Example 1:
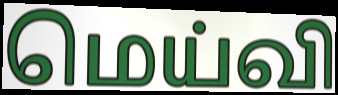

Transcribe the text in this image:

மெய்வி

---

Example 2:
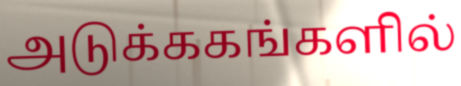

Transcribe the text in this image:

அடுக்ககங்களில்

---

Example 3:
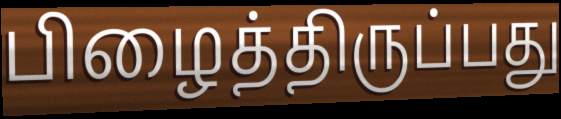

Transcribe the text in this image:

பிழைத்திருப்பது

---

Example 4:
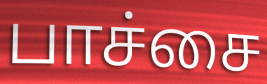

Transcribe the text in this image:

பாச்சை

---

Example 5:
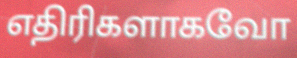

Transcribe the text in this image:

எதிரிகளாகவோ